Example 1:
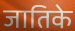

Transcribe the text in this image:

जातिके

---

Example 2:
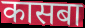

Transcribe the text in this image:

कासबा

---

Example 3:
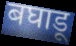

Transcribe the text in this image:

बघाडू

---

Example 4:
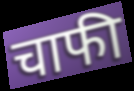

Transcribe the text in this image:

चाफी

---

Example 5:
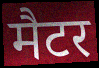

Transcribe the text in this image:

मैटर